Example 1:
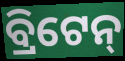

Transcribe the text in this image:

ବ୍ରିଟେନ୍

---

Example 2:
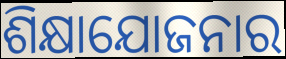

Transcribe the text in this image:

ଶିକ୍ଷାଯୋଜନାର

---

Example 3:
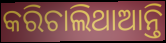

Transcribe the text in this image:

କରିଚାଲିଥାଆନ୍ତି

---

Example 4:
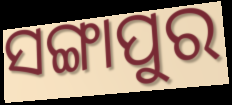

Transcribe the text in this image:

ସଙ୍ଗାପୁର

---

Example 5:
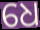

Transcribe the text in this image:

ଧେ